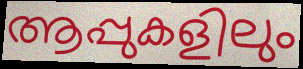
ആപ്പുകളിലും